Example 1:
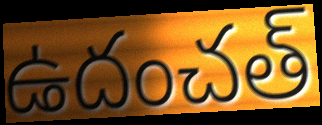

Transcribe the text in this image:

ఉదంచత్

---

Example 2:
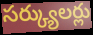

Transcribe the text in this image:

సర్క్యులర్లు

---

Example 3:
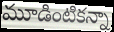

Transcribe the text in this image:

మూడింటికన్నా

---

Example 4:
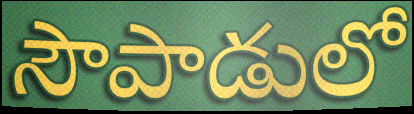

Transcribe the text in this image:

సౌపాడులో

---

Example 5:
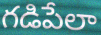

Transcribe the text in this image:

గడిపేలా